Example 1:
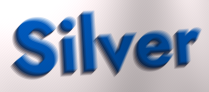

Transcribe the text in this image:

Silver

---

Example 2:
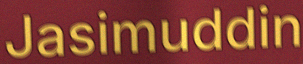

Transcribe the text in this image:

Jasimuddin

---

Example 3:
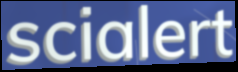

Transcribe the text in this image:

scialert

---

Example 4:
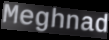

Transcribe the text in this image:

Meghnad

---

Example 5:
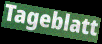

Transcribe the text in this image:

Tageblatt